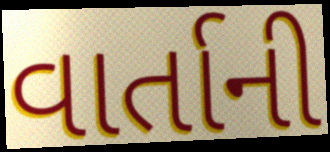
વાર્તાની